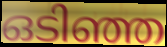
ഒടിഞ്ഞ